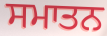
ਸਮਾਤਨ